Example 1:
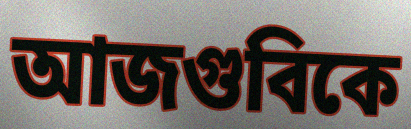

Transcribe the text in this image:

আজগুবিকে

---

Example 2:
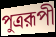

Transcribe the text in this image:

পুত্ররূপী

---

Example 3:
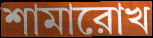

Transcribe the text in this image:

শামারোখ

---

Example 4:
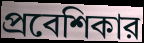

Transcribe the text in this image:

প্রবেশিকার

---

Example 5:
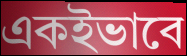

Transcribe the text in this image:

একইভাবে